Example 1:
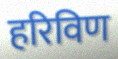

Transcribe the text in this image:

हरिविण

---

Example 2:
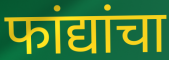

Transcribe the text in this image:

फांद्यांचा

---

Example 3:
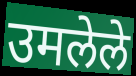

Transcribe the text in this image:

उमलेले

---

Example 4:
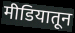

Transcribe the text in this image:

मीडियातून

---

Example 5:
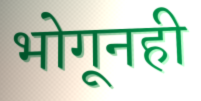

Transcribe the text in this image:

भोगूनही